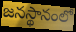
జనస్థానంలో